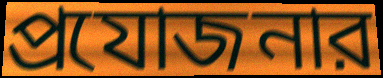
প্রযোজনার